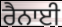
ਰੈਨਾਈ